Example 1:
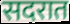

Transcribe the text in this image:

सदरात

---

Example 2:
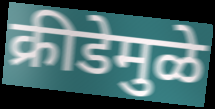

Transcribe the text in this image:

क्रीडेमुळे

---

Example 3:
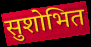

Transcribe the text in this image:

सुशोभित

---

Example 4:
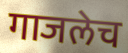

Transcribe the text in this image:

गाजलेच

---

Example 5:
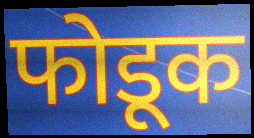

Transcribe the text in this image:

फोडूक